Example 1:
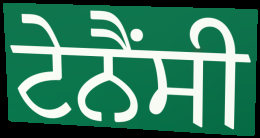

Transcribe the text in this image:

ਟੇਨੈਂਸੀ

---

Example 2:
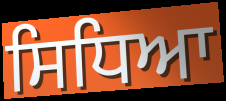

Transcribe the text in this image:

ਸਿਧਿਆ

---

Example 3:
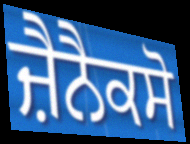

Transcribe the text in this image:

ਜ਼ੈਨੈਕਸੋ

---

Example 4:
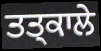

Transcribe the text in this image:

ਤਤ੍ਕਾਲੇ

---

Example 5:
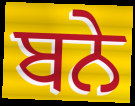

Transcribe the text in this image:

ਬਨੇ